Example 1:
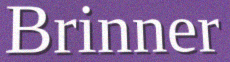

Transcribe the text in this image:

Brinner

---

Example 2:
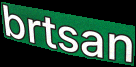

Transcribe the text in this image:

brtsan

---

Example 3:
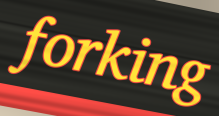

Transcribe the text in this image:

forking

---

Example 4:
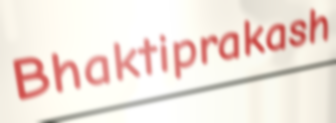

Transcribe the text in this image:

Bhaktiprakash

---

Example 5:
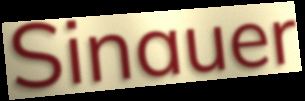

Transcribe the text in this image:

Sinauer